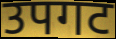
उपगट